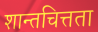
शान्तचित्तता